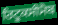
ਰਿਟੂਕਸੀਮੈਬ